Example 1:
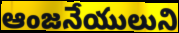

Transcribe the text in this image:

ఆంజనేయులుని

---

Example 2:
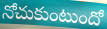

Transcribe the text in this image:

నోచుకుంటుందో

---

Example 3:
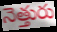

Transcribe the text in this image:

నెత్తురు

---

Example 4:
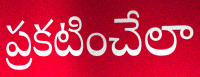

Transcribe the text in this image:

ప్రకటించేలా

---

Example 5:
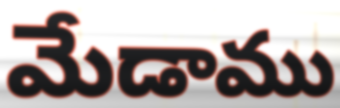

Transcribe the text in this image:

మేడాము